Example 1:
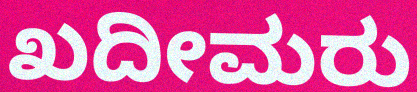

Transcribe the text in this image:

ಖದೀಮರು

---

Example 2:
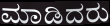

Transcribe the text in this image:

ಮಾಡಿದರು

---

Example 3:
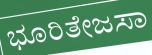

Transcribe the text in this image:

ಭೂರಿತೇಜಸಾ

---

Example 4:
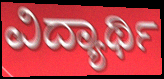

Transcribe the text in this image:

ವಿದ್ಯಾರ್ಥಿ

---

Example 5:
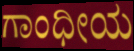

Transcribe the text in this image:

ಗಾಂಧೀಯ